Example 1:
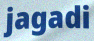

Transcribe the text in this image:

jagadi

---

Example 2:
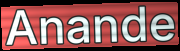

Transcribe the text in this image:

Anande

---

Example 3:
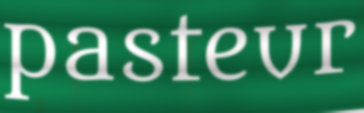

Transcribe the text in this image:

pasteur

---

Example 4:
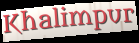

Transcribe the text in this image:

Khalimpur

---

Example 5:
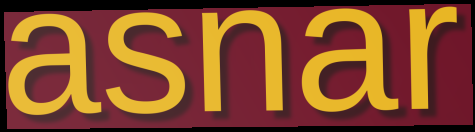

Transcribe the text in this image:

asnar